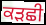
ਕੜਛੀ